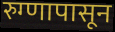
रुग्णापासून